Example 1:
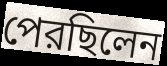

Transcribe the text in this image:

পেরছিলেন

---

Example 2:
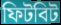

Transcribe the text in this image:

ফিটবিট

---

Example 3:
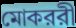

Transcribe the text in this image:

মোকররী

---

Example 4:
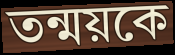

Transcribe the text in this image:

তন্ময়কে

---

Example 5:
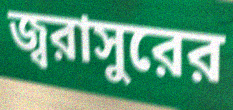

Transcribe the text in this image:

জ্বরাসুরের